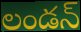
లండన్